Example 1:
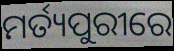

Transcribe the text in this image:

ମର୍ତ୍ୟପୁରୀରେ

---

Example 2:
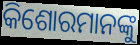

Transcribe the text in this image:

କିଶୋରମାନଙ୍କୁ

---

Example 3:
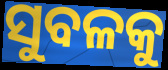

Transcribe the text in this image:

ସୁବଳକୁ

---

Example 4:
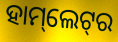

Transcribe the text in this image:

ହାମ୍‌ଲେଟ୍‌ର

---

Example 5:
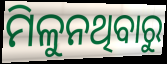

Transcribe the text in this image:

ମିଳୁନଥିବାରୁ